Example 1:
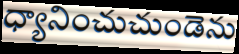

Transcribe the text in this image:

ధ్యానించుచుండెను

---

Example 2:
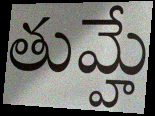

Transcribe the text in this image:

తుమ్హే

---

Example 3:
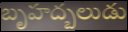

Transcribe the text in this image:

బృహద్బలుడు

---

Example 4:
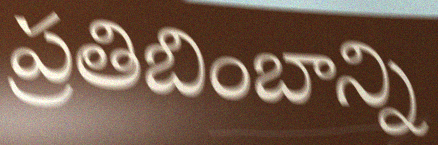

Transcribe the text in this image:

ప్రతిబింబాన్ని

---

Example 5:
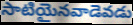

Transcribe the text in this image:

సాటియైనవాడెవడు